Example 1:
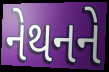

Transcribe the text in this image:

નેથનને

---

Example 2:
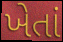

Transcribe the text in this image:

ખેતાં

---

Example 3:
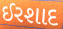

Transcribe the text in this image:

ઈરશાદ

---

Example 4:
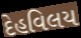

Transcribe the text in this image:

દેહવિલય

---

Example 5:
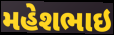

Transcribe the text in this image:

મહેશભાઇ